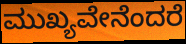
ಮುಖ್ಯವೇನೆಂದರೆ